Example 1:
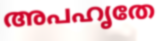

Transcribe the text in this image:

അപഹൃതേ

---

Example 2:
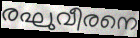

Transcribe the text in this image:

രഘുവീരനെ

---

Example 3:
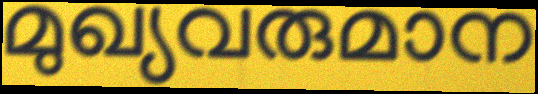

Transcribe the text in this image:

മുഖ്യവരുമാന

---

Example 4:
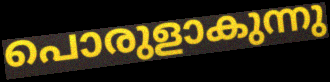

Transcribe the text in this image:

പൊരുളാകുന്നു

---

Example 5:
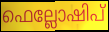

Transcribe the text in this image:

ഫെല്ലോഷിപ്